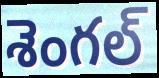
శెంగల్